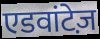
एडवांटेज़